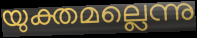
യുക്തമല്ലെന്നു